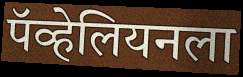
पॅव्हेलियनला